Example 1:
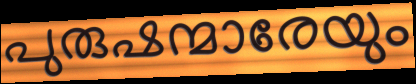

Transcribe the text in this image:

പുരുഷന്മാരേയും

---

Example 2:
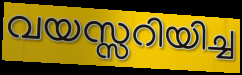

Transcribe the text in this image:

വയസ്സറിയിച്ച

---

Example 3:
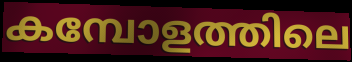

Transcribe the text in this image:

കമ്പോളത്തിലെ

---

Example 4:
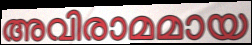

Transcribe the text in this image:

അവിരാമമായ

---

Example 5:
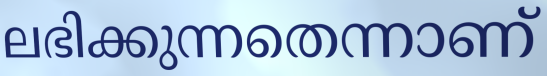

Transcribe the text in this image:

ലഭിക്കുന്നതെന്നാണ്